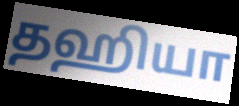
தஹியா